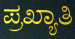
ಪ್ರಖ್ಯಾತಿ